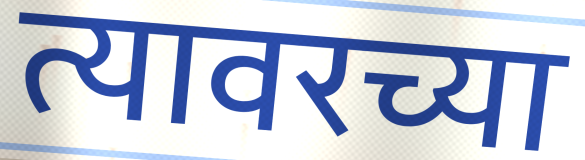
त्यावरच्या